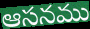
ఆసనము